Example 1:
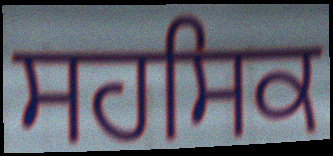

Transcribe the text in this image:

ਸਹਸਿਕ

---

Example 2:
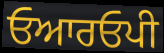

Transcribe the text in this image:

ਓਆਰਓਪੀ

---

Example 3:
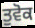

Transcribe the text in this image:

ਤੁਵੋਕ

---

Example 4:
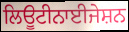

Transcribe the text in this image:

ਲਿਊਟੀਨਾਈਜੇਸ਼ਨ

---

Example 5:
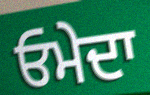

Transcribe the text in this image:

ਓਮੇਦਾ